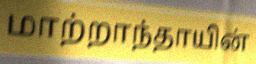
மாற்றாந்தாயின்